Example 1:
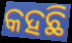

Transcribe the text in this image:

କହଛି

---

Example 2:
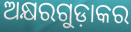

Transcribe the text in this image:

ଅକ୍ଷରଗୁଡ଼ାକର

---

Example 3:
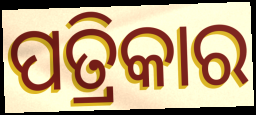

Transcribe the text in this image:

ପତ୍ରିକାର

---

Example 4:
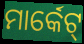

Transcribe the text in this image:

ମାର୍କେଟ୍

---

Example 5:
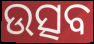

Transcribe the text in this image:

ଉତ୍ସବ